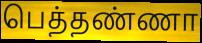
பெத்தண்ணா